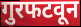
गुरफटवून